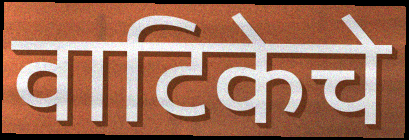
वाटिकेचे